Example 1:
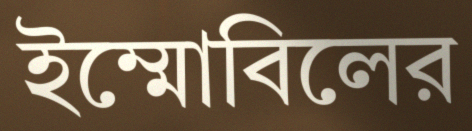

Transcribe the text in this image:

ইম্মোবিলের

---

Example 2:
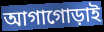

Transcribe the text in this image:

আগাগোড়াই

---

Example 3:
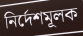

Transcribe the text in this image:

নির্দেশমূলক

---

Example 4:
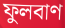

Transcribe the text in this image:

ফুলবাণ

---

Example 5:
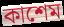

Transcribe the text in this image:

কাশেম